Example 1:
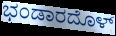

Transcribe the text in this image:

ಭಂಡಾರದೊಳ್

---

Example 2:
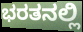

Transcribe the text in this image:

ಭರತನಲ್ಲಿ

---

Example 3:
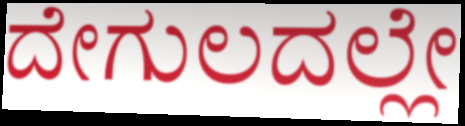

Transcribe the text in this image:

ದೇಗುಲದಲ್ಲೇ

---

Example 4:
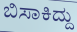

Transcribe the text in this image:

ಬಿಸಾಕಿದ್ದು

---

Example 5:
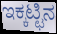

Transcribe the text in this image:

ಇಕ್ಕಟ್ಟಿನ